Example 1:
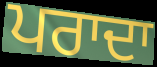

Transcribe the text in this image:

ਪਰਾਦਾ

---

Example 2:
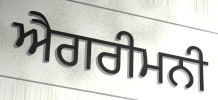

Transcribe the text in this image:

ਐਗਰੀਮਨੀ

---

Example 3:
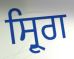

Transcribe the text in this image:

ਸ੍ਟ੍ਰਿਗ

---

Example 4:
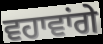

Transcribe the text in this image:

ਵਹਾਵਾਂਗੇ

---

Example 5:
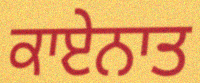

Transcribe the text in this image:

ਕਾਏਨਾਤ